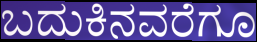
ಬದುಕಿನವರೆಗೂ